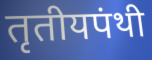
तृतीयपंथी